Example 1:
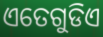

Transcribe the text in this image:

ଏତେଗୁଡିଏ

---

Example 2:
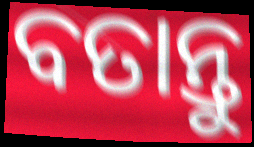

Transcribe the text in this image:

ବତାନ୍ତୁ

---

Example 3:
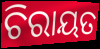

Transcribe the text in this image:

ଚିରାୟତ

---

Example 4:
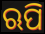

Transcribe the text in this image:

ଋପି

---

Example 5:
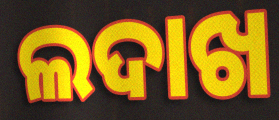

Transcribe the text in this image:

ଲଦାଖ